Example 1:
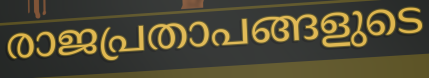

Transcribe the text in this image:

രാജപ്രതാപങ്ങളുടെ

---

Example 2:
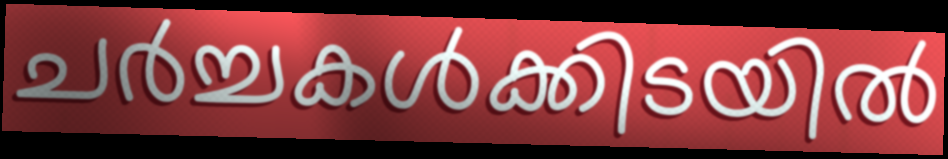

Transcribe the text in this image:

ചർച്ചകൾക്കിടയിൽ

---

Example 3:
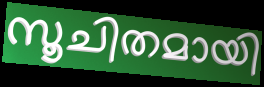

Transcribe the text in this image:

സൂചിതമായി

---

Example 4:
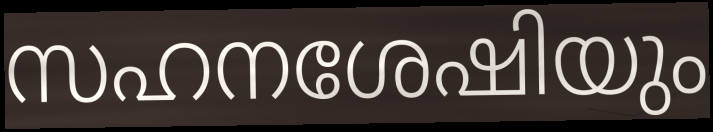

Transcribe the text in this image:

സഹനശേഷിയും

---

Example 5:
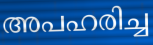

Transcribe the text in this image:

അപഹരിച്ച